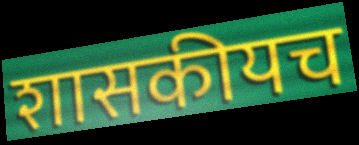
शासकीयच